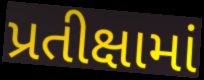
પ્રતીક્ષામાં